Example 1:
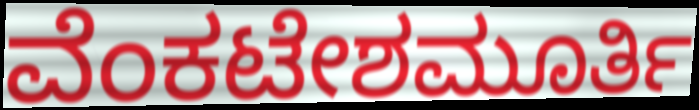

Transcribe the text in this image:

ವೆಂಕಟೇಶಮೂರ್ತಿ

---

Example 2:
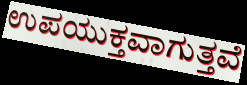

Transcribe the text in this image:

ಉಪಯುಕ್ತವಾಗುತ್ತವೆ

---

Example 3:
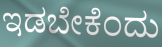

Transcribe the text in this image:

ಇಡಬೇಕೆಂದು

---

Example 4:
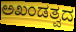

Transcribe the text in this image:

ಅಖಂಡತ್ವದ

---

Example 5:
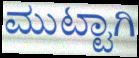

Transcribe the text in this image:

ಮುಟ್ಟಾಗಿ